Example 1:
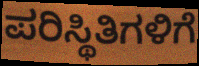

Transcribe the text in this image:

ಪರಿಸ್ಥಿತಿಗಳಿಗೆ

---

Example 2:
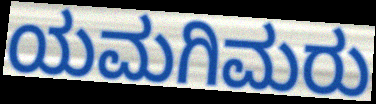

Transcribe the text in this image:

ಯಮಗಿಮರು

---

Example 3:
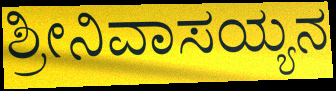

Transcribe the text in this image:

ಶ್ರೀನಿವಾಸಯ್ಯನ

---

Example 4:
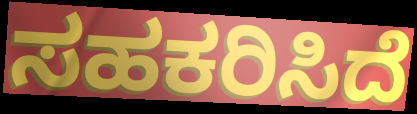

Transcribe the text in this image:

ಸಹಕರಿಸಿದೆ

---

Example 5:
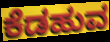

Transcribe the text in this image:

ಕೆಡಹುವ